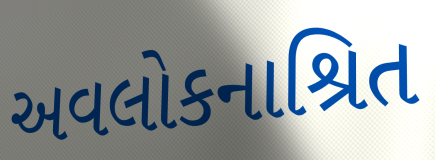
અવલોકનાશ્રિત